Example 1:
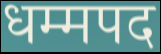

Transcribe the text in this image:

धम्मपद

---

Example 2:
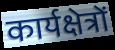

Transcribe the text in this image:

कार्यक्षेत्रों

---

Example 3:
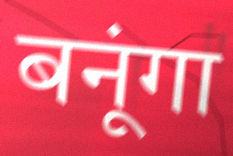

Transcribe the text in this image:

बनूंगा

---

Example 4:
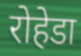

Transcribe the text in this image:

रोहेडा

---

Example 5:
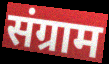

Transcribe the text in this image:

संग्राम